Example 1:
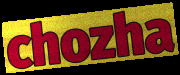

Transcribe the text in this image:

chozha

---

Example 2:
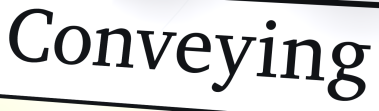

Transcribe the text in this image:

Conveying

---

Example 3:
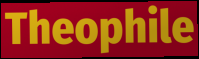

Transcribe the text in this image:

Theophile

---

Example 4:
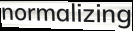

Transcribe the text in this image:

normalizing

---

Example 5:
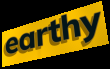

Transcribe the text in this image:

earthy